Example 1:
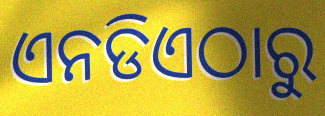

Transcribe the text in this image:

ଏନଡିଏଠାରୁ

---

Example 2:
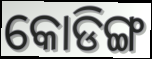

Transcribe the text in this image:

କୋଡିଙ୍ଗ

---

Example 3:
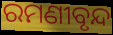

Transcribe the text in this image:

ରମଣୀବୃନ୍ଦ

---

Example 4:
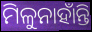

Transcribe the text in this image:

ମିଳୁନାହାଁନ୍ତି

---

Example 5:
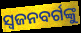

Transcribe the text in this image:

ସ୍ଵଜନବର୍ଗଙ୍କୁ